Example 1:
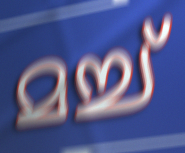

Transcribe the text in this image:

മച്ച്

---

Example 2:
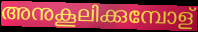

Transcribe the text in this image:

അനുകൂലിക്കുമ്പോള്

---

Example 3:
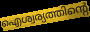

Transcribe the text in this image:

ഐശ്വര്യത്തിന്റെ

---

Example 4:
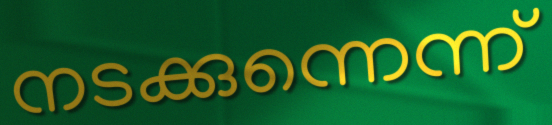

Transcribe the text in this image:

നടക്കുന്നെന്ന്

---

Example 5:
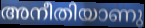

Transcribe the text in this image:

അനീതിയാണു